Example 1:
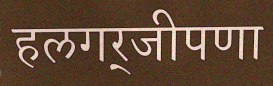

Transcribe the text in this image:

हलगर्जीपणा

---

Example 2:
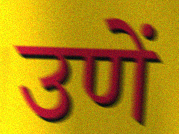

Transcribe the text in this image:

उणें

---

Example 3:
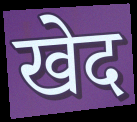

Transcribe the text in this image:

खेद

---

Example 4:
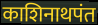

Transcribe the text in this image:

काशिनाथपंत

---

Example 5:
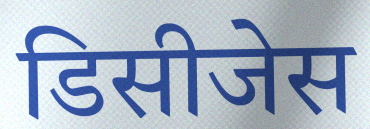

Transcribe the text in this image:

डिसीजेस